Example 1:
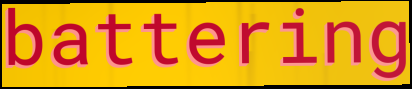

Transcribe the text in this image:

battering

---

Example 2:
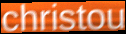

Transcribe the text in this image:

christou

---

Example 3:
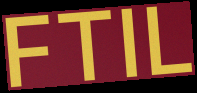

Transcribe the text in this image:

FTIL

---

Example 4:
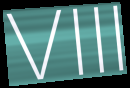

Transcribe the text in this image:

VIll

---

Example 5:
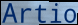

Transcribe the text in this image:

Artio